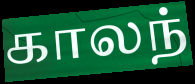
காலந்